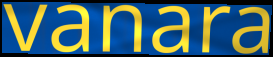
vanara